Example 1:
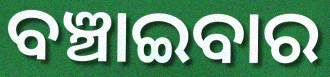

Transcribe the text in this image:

ବଞ୍ଚାଇବାର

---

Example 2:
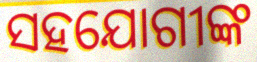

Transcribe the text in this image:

ସହଯୋଗୀଙ୍କ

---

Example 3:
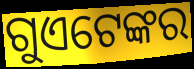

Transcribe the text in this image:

ଗୁଏଟେଙ୍କର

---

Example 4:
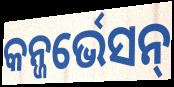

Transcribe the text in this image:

କନ୍ଜର୍ଭେସନ୍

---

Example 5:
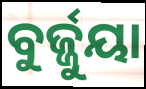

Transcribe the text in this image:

ବୁର୍ଜ୍ଜୁୟା